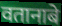
वतानाबे